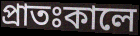
প্রাতঃকালে